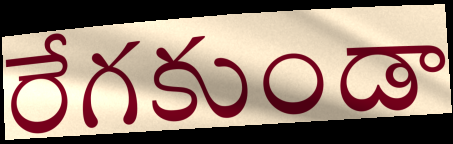
రేగకుండా